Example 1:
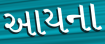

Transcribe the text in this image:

આયના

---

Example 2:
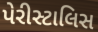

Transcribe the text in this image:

પેરીસ્ટાલિસ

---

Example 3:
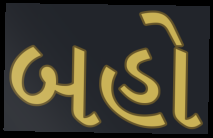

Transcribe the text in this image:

બહો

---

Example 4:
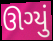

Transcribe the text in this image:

ઊગ્યું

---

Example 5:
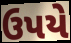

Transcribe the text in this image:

ઉપયે